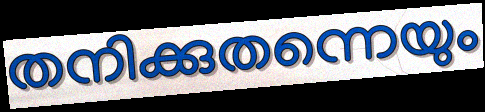
തനിക്കുതന്നെയും